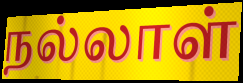
நல்லாள்